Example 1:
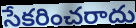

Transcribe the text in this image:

సేకరించరాదు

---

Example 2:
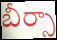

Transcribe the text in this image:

బీర్సా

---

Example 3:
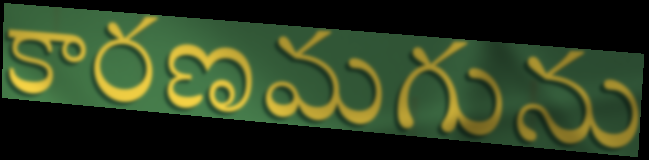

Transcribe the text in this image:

కారణమగును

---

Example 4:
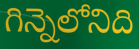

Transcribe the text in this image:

గిన్నెలోనిది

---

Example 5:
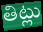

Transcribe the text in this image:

తిట్లు